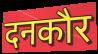
दनकौर